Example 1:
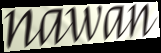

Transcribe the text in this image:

nawan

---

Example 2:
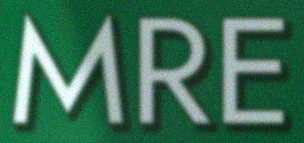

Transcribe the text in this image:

MRE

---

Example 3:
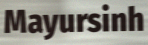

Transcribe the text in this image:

Mayursinh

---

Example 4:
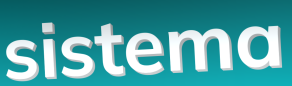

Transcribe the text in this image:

sistema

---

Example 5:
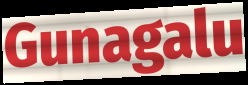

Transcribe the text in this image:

Gunagalu